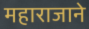
महाराजाने